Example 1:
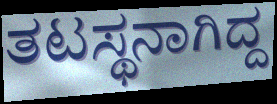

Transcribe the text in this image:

ತಟಸ್ಥನಾಗಿದ್ದ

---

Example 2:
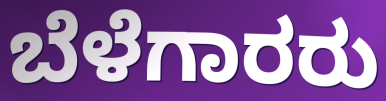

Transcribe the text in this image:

ಬೆಳೆಗಾರರು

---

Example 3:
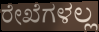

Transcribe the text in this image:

ರೇಖೆಗಳಲ್ಲ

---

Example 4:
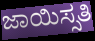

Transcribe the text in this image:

ಜಾಯಿಸ್ಸತಿ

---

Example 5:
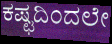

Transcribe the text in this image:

ಕಷ್ಟದಿಂದಲೇ